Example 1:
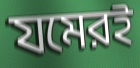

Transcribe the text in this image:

যমেরই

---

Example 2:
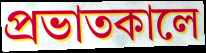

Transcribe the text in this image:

প্রভাতকালে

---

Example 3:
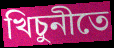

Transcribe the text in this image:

খিচুনীতে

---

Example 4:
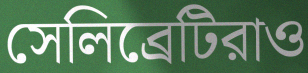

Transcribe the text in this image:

সেলিব্রেটিরাও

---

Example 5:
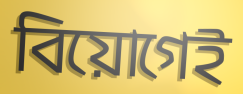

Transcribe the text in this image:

বিয়োগেই